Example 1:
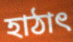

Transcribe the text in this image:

হাঠাৎ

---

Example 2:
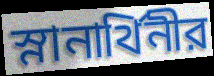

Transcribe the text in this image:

স্নানার্থিনীর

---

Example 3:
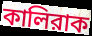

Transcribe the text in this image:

কালিরাক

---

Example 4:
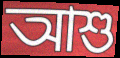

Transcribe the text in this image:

আশু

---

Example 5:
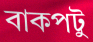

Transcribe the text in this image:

বাকপটু